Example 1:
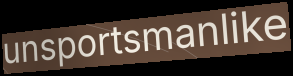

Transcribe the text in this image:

unsportsmanlike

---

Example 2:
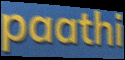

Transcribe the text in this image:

paathi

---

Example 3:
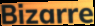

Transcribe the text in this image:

Bizarre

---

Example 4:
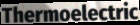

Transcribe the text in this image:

Thermoelectric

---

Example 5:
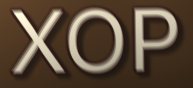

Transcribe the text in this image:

XOP